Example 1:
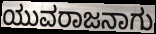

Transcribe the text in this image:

ಯುವರಾಜನಾಗು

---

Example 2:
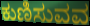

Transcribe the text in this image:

ಕುಣಿಸುವವ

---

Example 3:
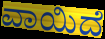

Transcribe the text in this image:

ವಾಯಿದೆ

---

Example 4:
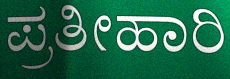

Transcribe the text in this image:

ಪ್ರತೀಹಾರಿ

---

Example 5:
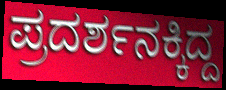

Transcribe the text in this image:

ಪ್ರದರ್ಶನಕ್ಕಿದ್ದ